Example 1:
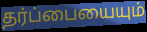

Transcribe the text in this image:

தர்ப்பையையும்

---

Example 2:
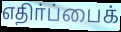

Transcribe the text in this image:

எதிர்ப்பைக்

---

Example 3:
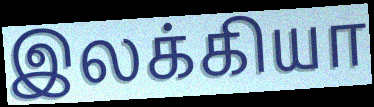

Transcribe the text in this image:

இலக்கியா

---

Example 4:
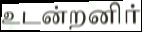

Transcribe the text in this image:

உடன்றனிர்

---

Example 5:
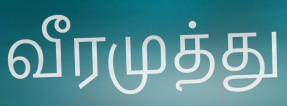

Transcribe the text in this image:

வீரமுத்து